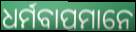
ଧର୍ମବାପମାନେ